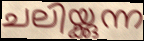
ചലിയ്ക്കുന്ന